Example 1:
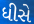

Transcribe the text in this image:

ધીસે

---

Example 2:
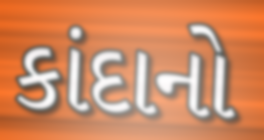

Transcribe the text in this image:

કાંદાનો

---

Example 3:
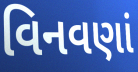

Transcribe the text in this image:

વિનવણાં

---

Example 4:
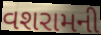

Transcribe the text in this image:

વશરામની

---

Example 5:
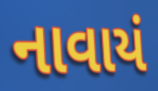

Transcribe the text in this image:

નાવાયં